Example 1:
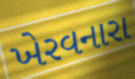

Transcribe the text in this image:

ખેરવનારા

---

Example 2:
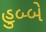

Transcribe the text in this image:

હુબ્બે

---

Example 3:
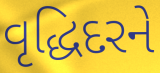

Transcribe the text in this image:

વૃદ્ધિદરને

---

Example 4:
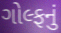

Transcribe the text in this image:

ગોલ્ફનું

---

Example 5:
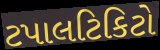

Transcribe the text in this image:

ટપાલટિકિટો